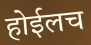
होईलच